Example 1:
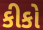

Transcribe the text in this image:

કીકો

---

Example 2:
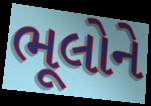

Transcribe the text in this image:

ભૂલોને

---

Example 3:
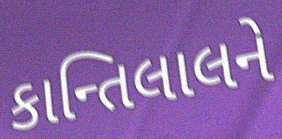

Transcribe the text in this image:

કાન્તિલાલને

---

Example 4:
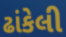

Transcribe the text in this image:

ઢાંકેલી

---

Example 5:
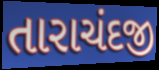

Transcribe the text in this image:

તારાચંદજી